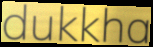
dukkha